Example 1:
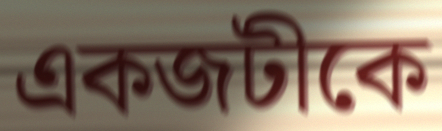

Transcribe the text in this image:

একজটীকে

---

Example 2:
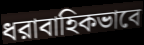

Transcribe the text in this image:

ধরাবাহিকভাবে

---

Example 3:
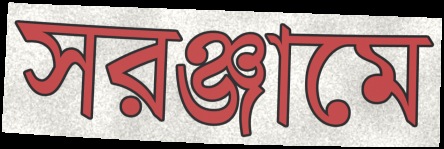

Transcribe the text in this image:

সরঞ্জামে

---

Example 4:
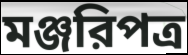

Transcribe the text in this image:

মঞ্জরিপত্র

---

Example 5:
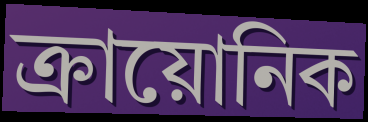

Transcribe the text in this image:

ক্রায়োনিক